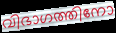
വിഭാഗത്തിനോ